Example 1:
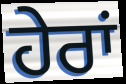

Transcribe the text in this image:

ਹੇਰਾਂ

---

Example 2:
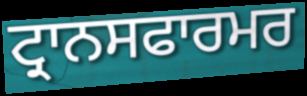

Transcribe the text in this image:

ਟ੍ਰਾਨਸਫਾਰਮਰ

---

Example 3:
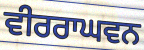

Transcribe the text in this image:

ਵੀਰਰਾਘਵਨ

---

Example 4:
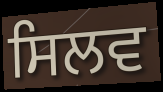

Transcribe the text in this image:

ਸਿਲਵ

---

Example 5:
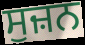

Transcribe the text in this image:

ਸੁਜ਼ਨ